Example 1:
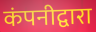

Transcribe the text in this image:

कंपनीद्वारा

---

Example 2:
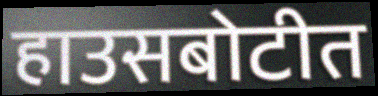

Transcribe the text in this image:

हाउसबोटीत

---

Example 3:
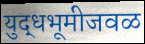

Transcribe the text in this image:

युद्धभूमीजवळ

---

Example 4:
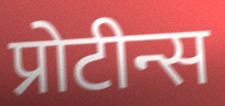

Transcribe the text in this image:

प्रोटीन्स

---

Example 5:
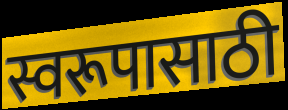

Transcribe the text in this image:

स्वरूपासाठी